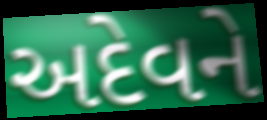
અદેવને